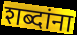
शब्दांना